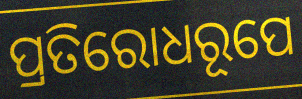
ପ୍ରତିରୋଧରୂପେ